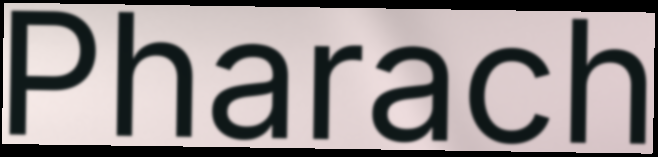
Pharach